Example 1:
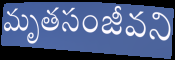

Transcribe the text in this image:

మృతసంజీవని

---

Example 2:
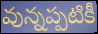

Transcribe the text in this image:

వున్నప్పటికీ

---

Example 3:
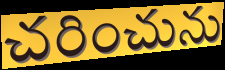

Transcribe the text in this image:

చరించును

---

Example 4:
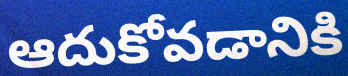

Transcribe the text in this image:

ఆదుకోవడానికి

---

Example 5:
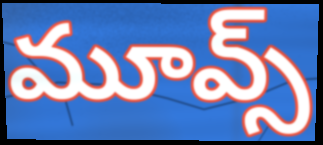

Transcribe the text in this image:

మూవ్స్